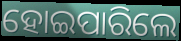
ହୋଇପାରିଲେ